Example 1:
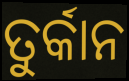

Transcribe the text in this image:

ତୁର୍କାନ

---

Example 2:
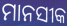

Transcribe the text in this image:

ମାନସୀକ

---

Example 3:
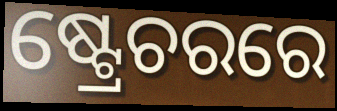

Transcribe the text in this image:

ଷ୍ଟ୍ରେଚରରେ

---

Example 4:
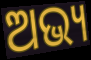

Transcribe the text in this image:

ଅଭ୍ୟ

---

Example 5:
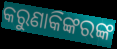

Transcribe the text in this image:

କରୁଣାକିଙ୍କରଙ୍କ